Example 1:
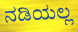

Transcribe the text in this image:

ನಡಿಯಲ್ಲ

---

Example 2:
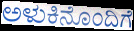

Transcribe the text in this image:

ಅಳುಕಿನೊಂದಿಗೆ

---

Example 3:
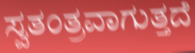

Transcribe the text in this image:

ಸ್ವತಂತ್ರವಾಗುತ್ತದೆ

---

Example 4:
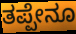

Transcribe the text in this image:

ತಪ್ಪೇನೂ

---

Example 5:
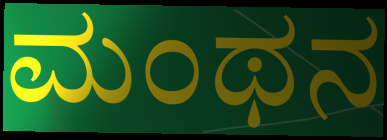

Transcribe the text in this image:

ಮಂಥನ